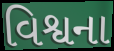
વિશ્વના